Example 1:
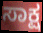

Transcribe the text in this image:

ಸಾಕ್ಷ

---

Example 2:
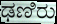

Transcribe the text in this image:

ಢಣಿರು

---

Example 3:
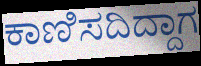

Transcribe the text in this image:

ಕಾಣಿಸದಿದ್ದಾಗ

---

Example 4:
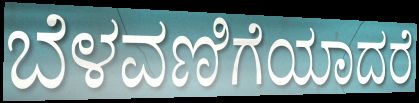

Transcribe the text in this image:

ಬೆಳವಣಿಗೆಯಾದರೆ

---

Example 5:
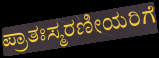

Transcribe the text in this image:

ಪ್ರಾತಃಸ್ಮರಣೀಯರಿಗೆ